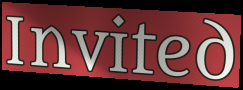
Invited